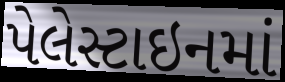
પેલેસ્ટાઇનમાં